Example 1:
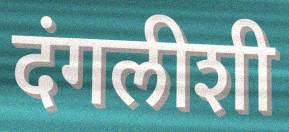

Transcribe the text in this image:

दंगलीशी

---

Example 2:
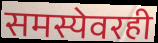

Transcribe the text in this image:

समस्येवरही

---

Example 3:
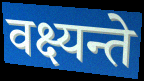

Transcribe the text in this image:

वक्ष्यन्ते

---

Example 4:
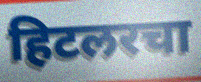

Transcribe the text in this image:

हिटलरचा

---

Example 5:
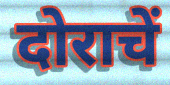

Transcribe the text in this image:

दोराचें